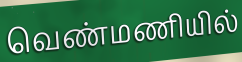
வெண்மணியில்